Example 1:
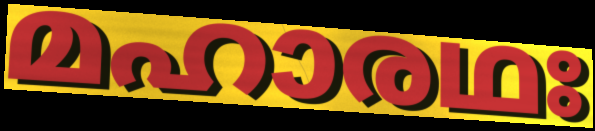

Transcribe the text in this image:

മഹാരഥഃ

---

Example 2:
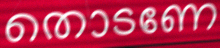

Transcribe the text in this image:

തൊടണേ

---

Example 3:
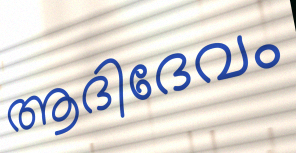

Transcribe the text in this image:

ആദിദേവം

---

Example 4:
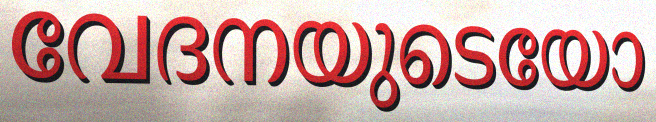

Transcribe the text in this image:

വേദനയുടെയോ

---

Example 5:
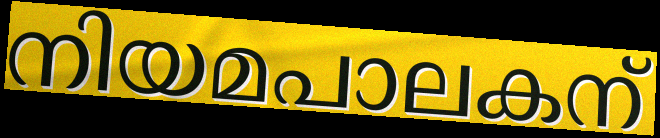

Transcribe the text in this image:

നിയമപാലകന്